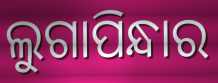
ଲୁଗାପିନ୍ଧାର